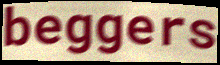
beggers